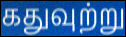
கதுவுற்று